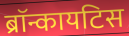
ब्रॉन्कायटिस